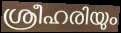
ശ്രീഹരിയും